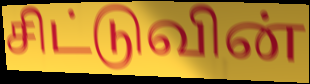
சிட்டுவின்